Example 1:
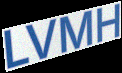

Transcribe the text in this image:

LVMH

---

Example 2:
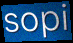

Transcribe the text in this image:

sopi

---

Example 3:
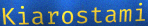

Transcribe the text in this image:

Kiarostami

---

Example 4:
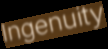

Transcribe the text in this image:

Ingenuity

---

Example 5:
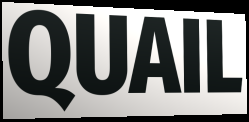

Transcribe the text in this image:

QUAIL